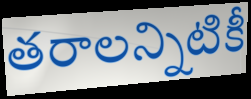
తరాలన్నిటికీ